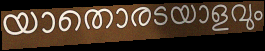
യാതൊരടയാളവും